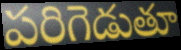
పరిగెడుతూ